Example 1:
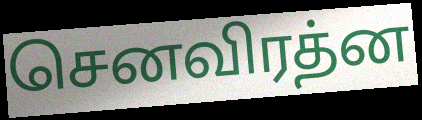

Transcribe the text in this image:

செனவிரத்ன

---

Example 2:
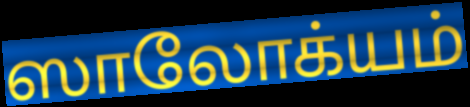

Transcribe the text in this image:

ஸாலோக்யம்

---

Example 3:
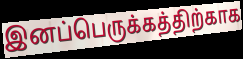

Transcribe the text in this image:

இனப்பெருக்கத்திற்காக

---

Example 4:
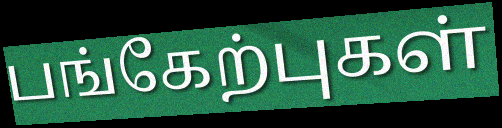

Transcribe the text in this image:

பங்கேற்புகள்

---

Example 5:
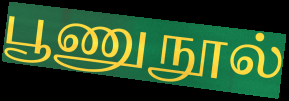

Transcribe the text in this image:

பூணுநூல்